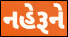
નહેરૂને